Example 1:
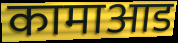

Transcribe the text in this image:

कामाआड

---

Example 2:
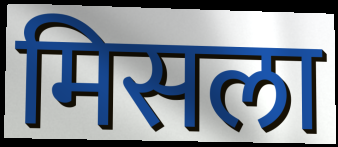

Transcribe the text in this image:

मिसला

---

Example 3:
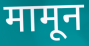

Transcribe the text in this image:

मामून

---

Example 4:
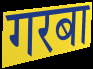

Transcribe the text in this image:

गरबा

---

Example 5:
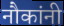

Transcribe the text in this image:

नौकांनी